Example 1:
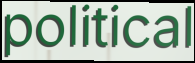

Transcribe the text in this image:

political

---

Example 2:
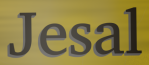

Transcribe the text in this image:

Jesal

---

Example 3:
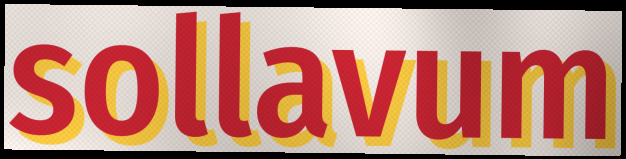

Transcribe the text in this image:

sollavum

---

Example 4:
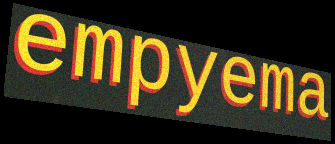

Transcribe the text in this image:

empyema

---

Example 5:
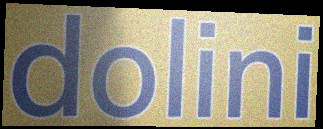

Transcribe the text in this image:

dolini